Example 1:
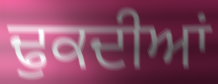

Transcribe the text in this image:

ਢੁਕਦੀਆਂ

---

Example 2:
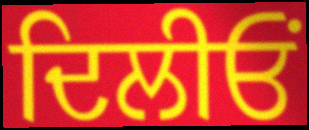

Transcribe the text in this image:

ਦਿਲੀਓਂ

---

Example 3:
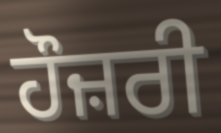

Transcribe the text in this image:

ਹੌਜ਼ਰੀ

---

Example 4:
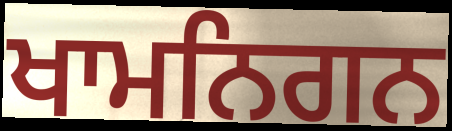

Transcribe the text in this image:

ਖਾਮਨਿਗਨ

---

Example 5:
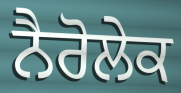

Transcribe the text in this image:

ਨੈਰੋਲੇਕ